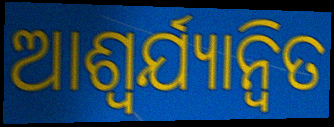
ଆଶ୍ବର୍ଯ୍ୟାନ୍ବିତ